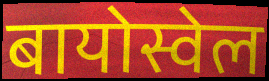
बायोस्वेल